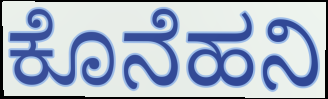
ಕೊನೆಹನಿ